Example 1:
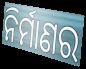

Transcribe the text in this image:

ନିର୍ମାଣର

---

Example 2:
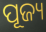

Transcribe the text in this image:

ପୂଜ୍ୟ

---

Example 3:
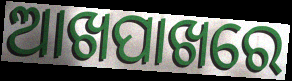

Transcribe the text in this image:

ଆଖପାଖରେ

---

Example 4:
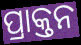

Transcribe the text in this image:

ପ୍ରାକ୍ତନ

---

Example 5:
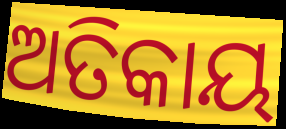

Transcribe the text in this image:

ଅତିକାୟ